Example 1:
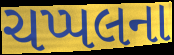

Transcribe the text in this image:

ચપ્પલના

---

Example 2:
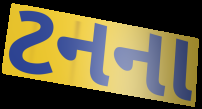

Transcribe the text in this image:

ટનના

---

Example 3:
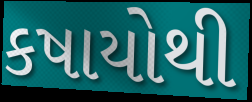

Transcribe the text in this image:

કષાયોથી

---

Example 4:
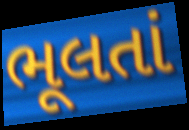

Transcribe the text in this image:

ભૂલતાં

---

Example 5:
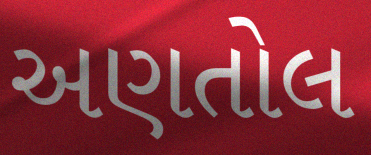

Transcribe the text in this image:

અણતોલ